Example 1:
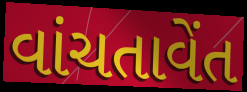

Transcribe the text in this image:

વાંચતાવેંત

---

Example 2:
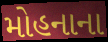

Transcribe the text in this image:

મોહનાના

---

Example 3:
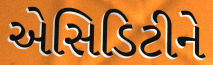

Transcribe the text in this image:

એસિડિટીને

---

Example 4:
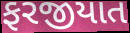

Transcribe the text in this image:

ફરજીયાત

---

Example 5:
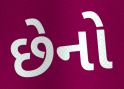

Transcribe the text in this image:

છેનો